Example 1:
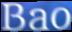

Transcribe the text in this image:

Bao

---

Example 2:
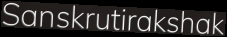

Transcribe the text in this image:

Sanskrutirakshak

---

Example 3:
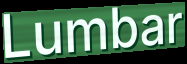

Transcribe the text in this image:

Lumbar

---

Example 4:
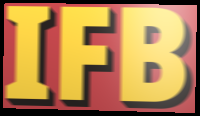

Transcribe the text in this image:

IFB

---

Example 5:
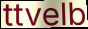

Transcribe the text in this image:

ttvelb